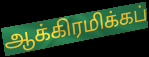
ஆக்கிரமிக்கப்